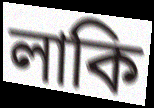
লাকি